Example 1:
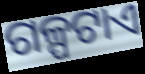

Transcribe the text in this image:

ଗଳ୍ପଟାଏ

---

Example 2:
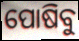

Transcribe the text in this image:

ପୋଷିବୁ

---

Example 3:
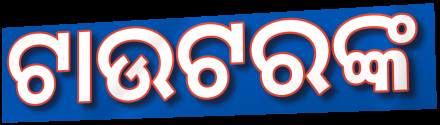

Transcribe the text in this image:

ଟାଉଟରଙ୍କ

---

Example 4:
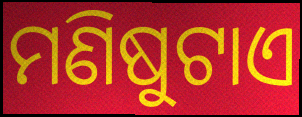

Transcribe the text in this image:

ମଣିଷୁଟାଏ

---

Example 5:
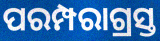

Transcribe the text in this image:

ପରମ୍ପରାଗ୍ରସ୍ତ